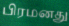
பிரமனது